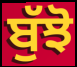
ਬੁੱਝੋ